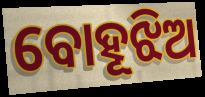
ବୋହୂଝିଅ